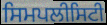
ਸਿਮਪਲੀਸਿਟੀ